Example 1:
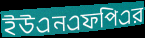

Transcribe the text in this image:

ইউএনএফপিএর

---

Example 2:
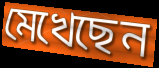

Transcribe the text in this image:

মেখেছেন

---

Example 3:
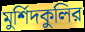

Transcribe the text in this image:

মুর্শিদকুলির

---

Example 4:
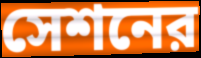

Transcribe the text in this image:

সেশনের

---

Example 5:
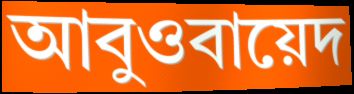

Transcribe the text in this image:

আবুওবায়েদ